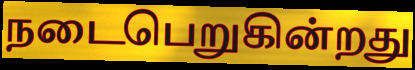
நடைபெறுகின்றது